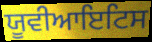
ਯੂਵੀਆਇਟਿਸ